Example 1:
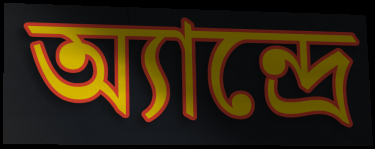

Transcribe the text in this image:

অ্যান্দ্রে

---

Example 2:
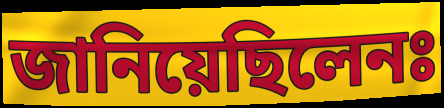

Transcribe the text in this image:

জানিয়েছিলেনঃ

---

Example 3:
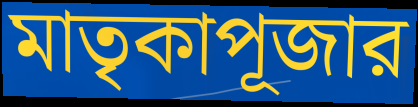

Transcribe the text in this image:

মাতৃকাপূজার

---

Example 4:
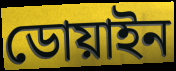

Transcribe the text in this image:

ডোয়াইন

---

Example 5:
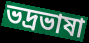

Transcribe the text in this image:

ভদ্রভাষা